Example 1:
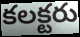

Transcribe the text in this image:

కలక్టరు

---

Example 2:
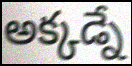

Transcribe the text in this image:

అక్కడ్నే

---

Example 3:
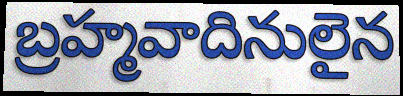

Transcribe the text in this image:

బ్రహ్మవాదినులైన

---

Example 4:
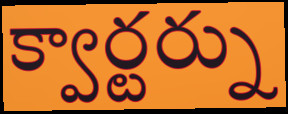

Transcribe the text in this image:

క్వార్టర్ను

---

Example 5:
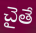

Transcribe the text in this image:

చైతే